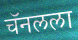
चॅनलला